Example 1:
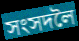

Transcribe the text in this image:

সংসদলৈ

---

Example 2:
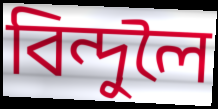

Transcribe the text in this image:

বিন্দুলৈ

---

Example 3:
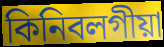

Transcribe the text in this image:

কিনিবলগীয়া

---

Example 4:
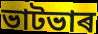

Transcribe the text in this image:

ভাটভাৰ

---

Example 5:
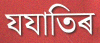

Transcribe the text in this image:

যযাতিৰ